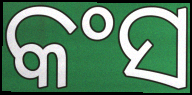
କଂସ